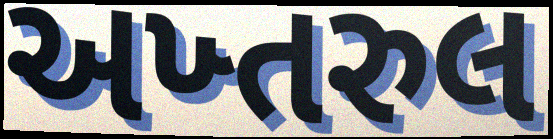
અખ્તરુલ